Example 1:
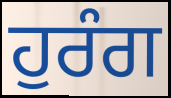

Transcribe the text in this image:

ਹੁਰੰਗ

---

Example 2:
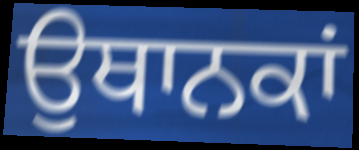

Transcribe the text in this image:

ਉਥਾਨਕਾਂ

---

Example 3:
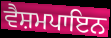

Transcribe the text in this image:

ਵੈਸ਼ਮਪਾਇਨ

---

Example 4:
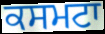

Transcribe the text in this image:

ਕਸਮਟਾ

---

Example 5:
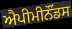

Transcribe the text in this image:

ਐਪੀਮੀਨੌਂਡਸ